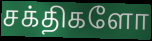
சக்திகளோ